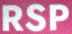
RSP